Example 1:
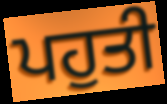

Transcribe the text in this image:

ਪਹੁਤੀ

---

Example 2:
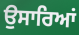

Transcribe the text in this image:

ਉਸਾਰਿਆਂ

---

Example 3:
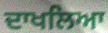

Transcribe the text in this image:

ਦਾਖਲਿਆ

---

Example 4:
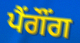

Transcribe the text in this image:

ਪੈਂਗੌਂਗ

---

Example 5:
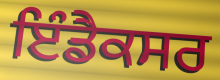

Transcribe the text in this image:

ਇੰਡੈਕਸਰ